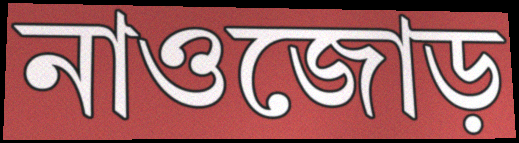
নাওজোড়